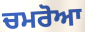
ਚਮਰੋਆ